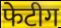
फेटीग